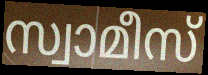
സ്വാമീസ്